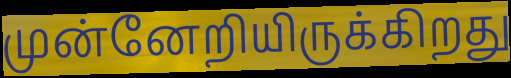
முன்னேறியிருக்கிறது